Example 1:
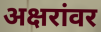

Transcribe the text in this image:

अक्षरांवर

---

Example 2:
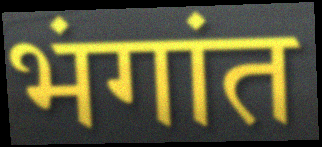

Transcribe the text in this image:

भंगांत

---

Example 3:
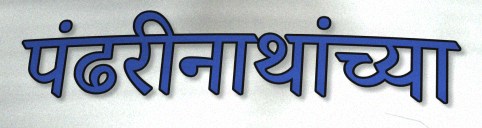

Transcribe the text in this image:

पंढरीनाथांच्या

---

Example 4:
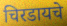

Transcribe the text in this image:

चिरडायचे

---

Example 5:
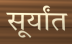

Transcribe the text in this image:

सूर्यांत